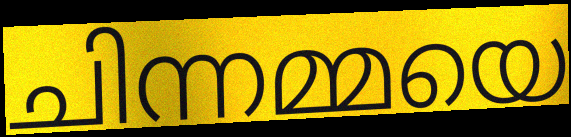
ചിന്നമ്മയെ